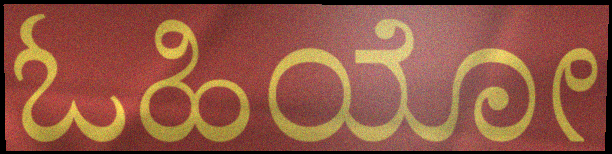
ಓಹಿಯೋ